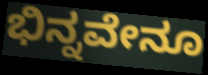
ಭಿನ್ನವೇನೂ